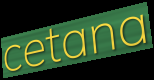
cetana